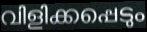
വിളിക്കപ്പെടും